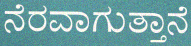
ನೆರವಾಗುತ್ತಾನೆ